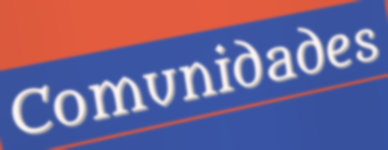
Comunidades